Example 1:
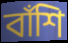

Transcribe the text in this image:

বাঁশি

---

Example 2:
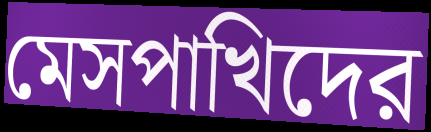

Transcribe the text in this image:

মেসপাখিদের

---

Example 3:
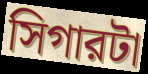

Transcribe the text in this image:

সিগারটা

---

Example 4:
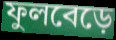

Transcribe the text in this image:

ফুলবেড়ে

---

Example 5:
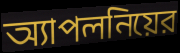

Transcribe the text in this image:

অ্যাপলনিয়ের